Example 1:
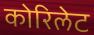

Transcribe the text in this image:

कोरिलेट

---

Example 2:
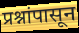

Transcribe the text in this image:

प्रश्नांपासून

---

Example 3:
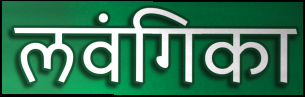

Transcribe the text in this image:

लवंगिका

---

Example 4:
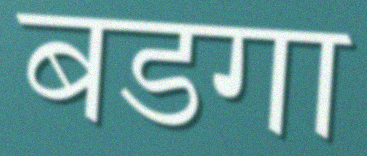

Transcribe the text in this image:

बडगा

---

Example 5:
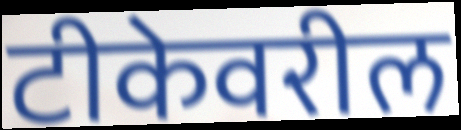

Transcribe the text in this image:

टीकेवरील